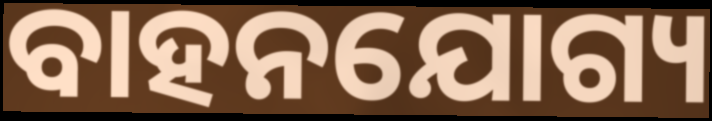
ବାହନଯୋଗ୍ୟ